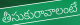
తీసుకురావాలంటే